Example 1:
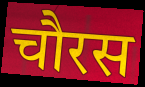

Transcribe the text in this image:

चौरस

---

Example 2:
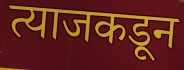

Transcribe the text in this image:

त्याजकडून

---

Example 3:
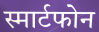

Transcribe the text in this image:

स्मार्टफोन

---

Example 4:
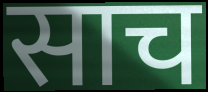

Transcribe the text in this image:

साच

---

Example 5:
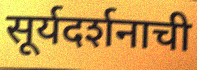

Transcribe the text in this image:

सूर्यदर्शनाची